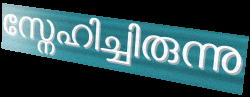
സ്നേഹിച്ചിരുന്നു